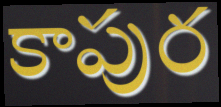
కాపుర